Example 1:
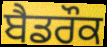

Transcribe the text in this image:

ਬੈਡਰੌਕ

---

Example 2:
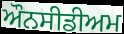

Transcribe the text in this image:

ਔਨਸੀਡੀਅਮ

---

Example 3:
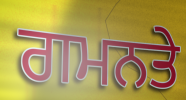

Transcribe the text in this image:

ਗਮਨਤੇ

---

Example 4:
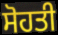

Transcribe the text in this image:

ਸੋਹਤੀ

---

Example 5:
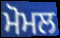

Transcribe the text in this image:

ਮੋਮਲ